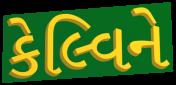
કેલ્વિને